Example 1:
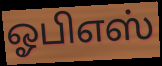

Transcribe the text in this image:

ஓபிஎஸ்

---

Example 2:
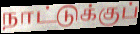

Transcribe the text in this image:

நாட்டுக்குப்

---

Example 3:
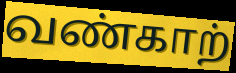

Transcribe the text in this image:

வண்காற்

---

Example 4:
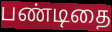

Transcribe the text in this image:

பண்டிதை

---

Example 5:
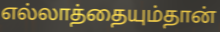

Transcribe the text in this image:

எல்லாத்தையும்தான்